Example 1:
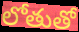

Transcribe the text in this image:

లోతుతో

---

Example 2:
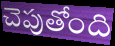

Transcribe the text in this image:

చెపుతోంది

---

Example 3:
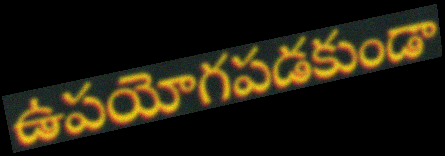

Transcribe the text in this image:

ఉపయోగపడకుండా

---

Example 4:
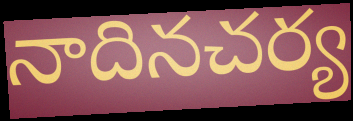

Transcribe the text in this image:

నాదినచర్య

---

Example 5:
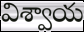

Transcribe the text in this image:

విశ్వాయ